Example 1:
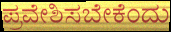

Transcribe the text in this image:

ಪ್ರವೇಶಿಸಬೇಕೆಂದು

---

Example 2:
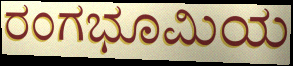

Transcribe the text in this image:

ರಂಗಭೂಮಿಯ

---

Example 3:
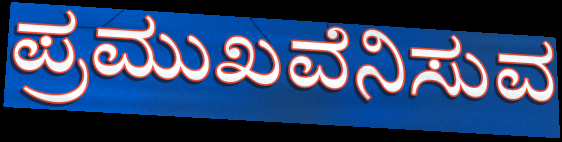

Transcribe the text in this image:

ಪ್ರಮುಖವೆನಿಸುವ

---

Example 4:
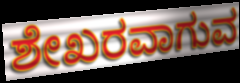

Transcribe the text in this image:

ಶೇಖರವಾಗುವ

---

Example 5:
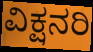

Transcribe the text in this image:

ವಿಕ್ಷನರಿ